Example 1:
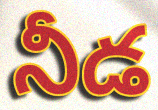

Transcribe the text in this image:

నీడ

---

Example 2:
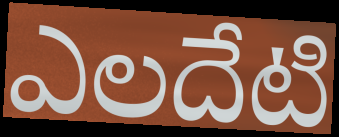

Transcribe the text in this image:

ఎలదేటి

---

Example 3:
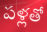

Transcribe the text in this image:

పళ్లతో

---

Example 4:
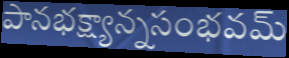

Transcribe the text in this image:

పానభక్ష్యాన్నసంభవమ్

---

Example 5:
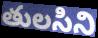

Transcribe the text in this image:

తులసిని